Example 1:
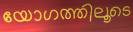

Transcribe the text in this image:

യോഗത്തിലൂടെ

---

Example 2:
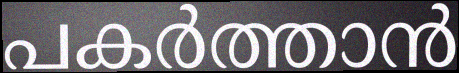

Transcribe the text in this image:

പകർത്താൻ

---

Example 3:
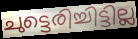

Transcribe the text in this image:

ചുട്ടെരിച്ചിട്ടില്ല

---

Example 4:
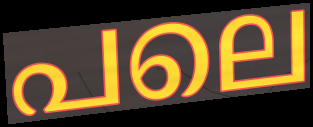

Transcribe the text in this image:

പലെ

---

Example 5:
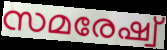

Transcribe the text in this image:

സമരേഷ്വ്